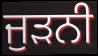
ਜੁੜਨੀ